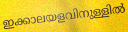
ഇക്കാലയളവിനുള്ളിൽ